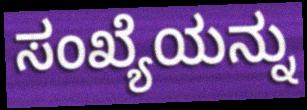
ಸಂಖ್ಯೆಯನ್ನು